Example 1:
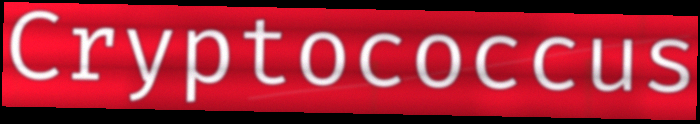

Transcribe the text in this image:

Cryptococcus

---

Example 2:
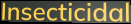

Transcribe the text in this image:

Insecticidal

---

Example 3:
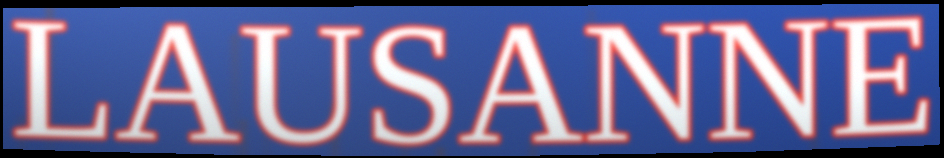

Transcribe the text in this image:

LAUSANNE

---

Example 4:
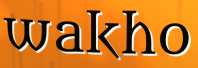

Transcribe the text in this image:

wakho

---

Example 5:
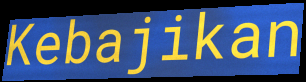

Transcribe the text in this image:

Kebajikan